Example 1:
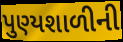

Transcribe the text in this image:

પુણ્યશાળીની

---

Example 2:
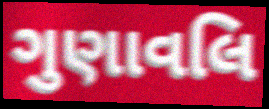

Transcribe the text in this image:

ગુણાવલિ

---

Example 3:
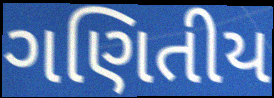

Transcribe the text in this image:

ગણિતીય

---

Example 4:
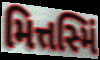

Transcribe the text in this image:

મિત્તસ્મિં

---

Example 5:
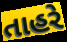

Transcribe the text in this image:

તાહરે